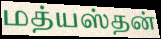
மத்யஸ்தன்